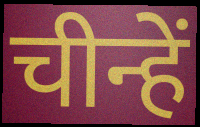
चीन्हें